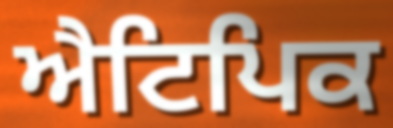
ਐਟਿਪਿਕ